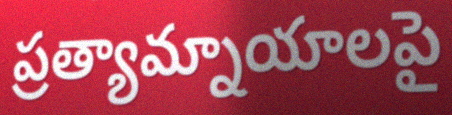
ప్రత్యామ్నాయాలపై